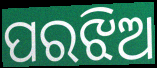
ପରଝିଅ